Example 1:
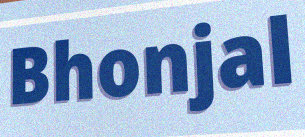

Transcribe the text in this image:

Bhonjal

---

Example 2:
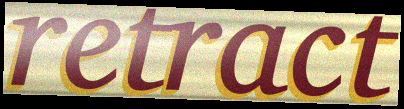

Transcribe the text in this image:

retract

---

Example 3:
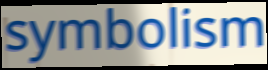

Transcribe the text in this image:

symbolism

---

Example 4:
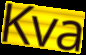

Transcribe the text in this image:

Kva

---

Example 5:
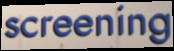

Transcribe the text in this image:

screening